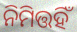
ନିମିତ୍ତହିଁ